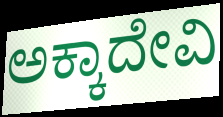
ಅಕ್ಕಾದೇವಿ